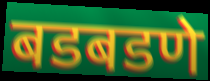
बडबडणे